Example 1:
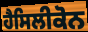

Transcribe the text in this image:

ਹੈਸਿਲੀਕੋਨ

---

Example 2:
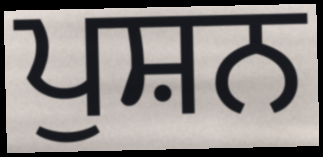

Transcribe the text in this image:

ਪੁਸ਼ਨ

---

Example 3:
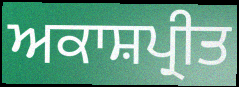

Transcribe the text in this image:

ਅਕਾਸ਼ਪ੍ਰੀਤ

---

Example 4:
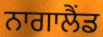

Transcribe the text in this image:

ਨਾਗਾਲੈਂਡ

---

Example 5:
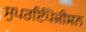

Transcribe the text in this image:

ਸੁਪਰਇੰਪੋਜ਼ੀਸ਼ਨ